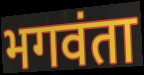
भगवंता